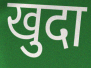
खुदा